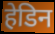
हेडिन